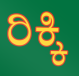
ರಿಕ್ಕಿ